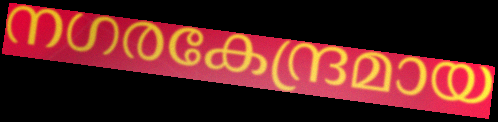
നഗരകേന്ദ്രമായ